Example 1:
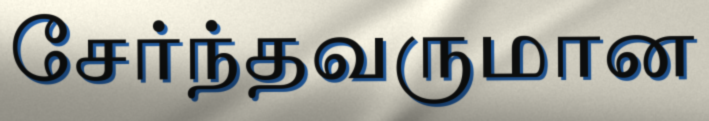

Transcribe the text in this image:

சேர்ந்தவருமான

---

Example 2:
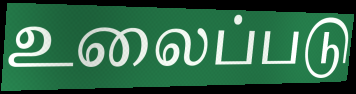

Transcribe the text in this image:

உலைப்படு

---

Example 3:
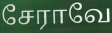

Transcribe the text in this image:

சேராவே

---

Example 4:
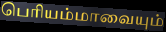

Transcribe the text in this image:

பெரியம்மாவையும்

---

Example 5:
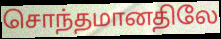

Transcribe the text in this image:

சொந்தமானதிலே